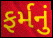
ફર્મનું